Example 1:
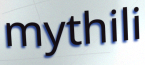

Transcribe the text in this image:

mythili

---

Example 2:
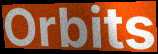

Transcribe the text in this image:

Orbits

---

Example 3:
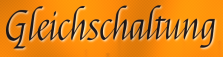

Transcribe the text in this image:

Gleichschaltung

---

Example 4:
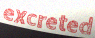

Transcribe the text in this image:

excreted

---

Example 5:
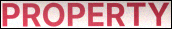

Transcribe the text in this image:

PROPERTY